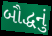
બૌદ્ધનું